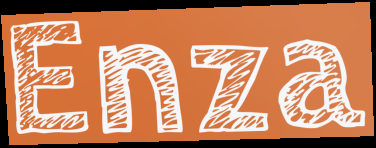
Enza